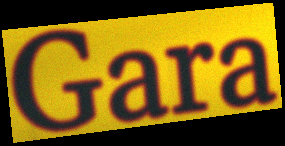
Gara